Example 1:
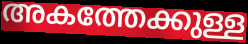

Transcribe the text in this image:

അകത്തേക്കുള്ള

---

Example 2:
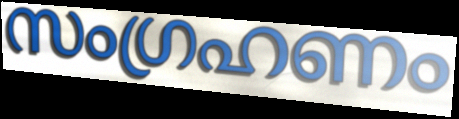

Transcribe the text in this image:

സംഗ്രഹണം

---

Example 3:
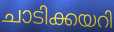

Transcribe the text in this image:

ചാടിക്കയറി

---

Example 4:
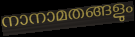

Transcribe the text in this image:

നാനാമതങ്ങളും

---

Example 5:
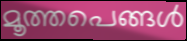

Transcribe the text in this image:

മൂത്തപെങ്ങൾ